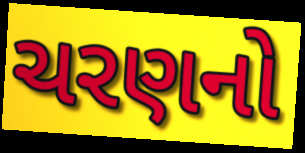
ચરણનો